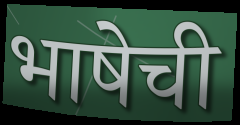
भाषेची